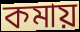
কমায়